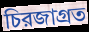
চিরজাগ্রত